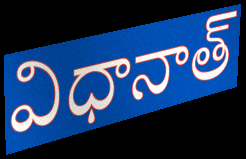
విధానాత్